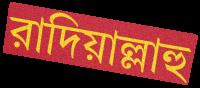
রাদিয়াল্লাহু